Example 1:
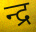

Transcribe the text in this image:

न्द्र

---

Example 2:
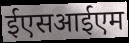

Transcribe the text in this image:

ईएसआईएम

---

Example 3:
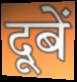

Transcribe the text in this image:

दूबें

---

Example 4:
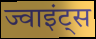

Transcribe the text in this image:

ज्वाइंट्स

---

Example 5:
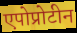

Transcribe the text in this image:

एपोप्रोटीन